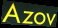
Azov